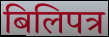
बिलिपत्र